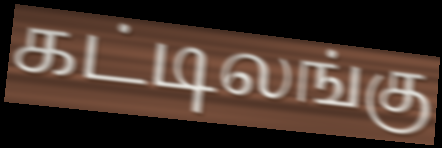
கட்டிலங்கு